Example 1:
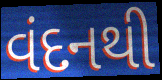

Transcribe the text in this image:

વંદનથી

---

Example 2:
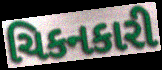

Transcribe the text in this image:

ચિકનકારી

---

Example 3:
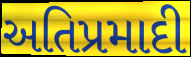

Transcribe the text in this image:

અતિપ્રમાદી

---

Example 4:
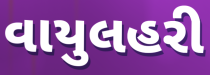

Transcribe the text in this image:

વાયુલહરી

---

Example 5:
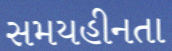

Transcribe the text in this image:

સમયહીનતા